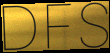
DFS